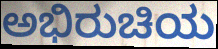
ಅಭಿರುಚಿಯ